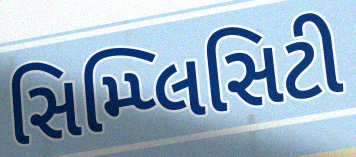
સિમ્પ્લિસિટી